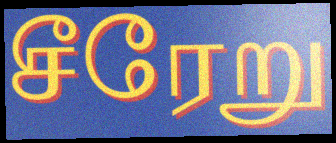
சீரேறு